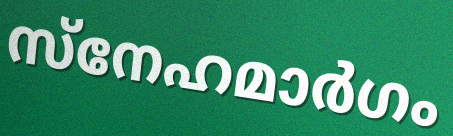
സ്നേഹമാർഗം